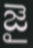
జై